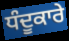
ਧੰਦੂਕਾਰੇ